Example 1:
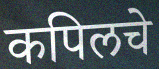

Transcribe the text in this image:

कपिलचे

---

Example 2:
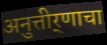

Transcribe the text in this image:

अनुत्तीर्णाचा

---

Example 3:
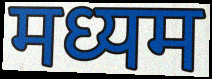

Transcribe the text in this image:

मध्यम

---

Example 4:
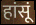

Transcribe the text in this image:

हांसूं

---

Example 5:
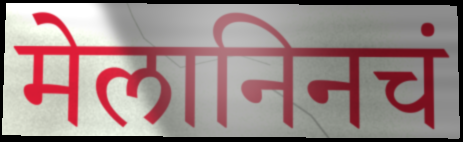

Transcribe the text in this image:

मेलानिनचं